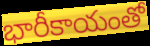
భారీకాయంతో